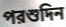
পরশুদিন